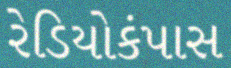
રેડિયોકંપાસ